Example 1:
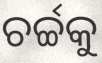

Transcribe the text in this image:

ଚର୍ଚ୍ଚକୁ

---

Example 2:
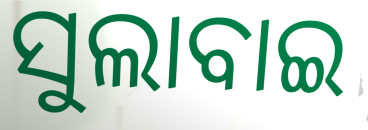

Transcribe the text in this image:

ସୁଲାବାଇ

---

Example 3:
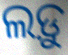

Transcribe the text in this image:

ଲଡ଼ୁ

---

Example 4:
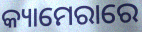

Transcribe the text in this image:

କ୍ୟାମେରାରେ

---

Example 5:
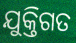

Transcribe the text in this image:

ଯୁକ୍ତିଗତ